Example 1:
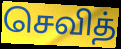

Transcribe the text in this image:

செவித்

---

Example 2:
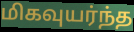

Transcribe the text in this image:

மிகவுயர்ந்த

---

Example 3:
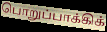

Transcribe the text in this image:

பொறுப்பாக்கிக்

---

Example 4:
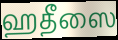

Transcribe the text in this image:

ஹதீஸை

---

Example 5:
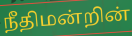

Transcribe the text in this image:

நீதிமன்றின்